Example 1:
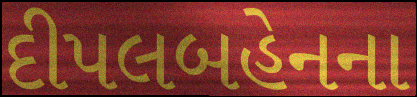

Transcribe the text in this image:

દીપલબહેનના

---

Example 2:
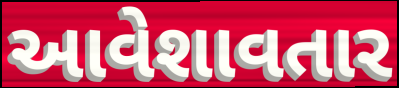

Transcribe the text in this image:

આવેશાવતાર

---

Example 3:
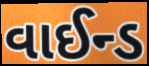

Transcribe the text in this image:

વાઈન્ડ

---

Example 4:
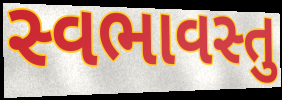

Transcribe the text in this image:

સ્વભાવસ્તુ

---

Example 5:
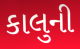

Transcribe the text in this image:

કાલુની